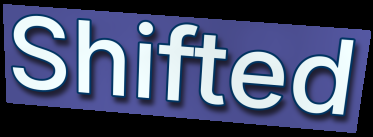
Shifted